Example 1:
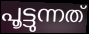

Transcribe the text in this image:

പൂട്ടുന്നത്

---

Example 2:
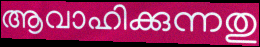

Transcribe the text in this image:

ആവാഹിക്കുന്നതു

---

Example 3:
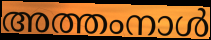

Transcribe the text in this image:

അത്തംനാൾ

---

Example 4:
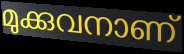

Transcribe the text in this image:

മുക്കുവനാണ്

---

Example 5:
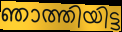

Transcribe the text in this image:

ഞാത്തിയിട്ട